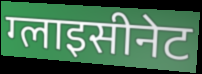
ग्लाइसीनेट